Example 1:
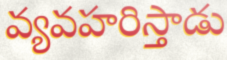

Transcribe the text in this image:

వ్యవహరిస్తాడు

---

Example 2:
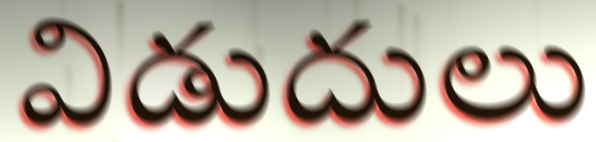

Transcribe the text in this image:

విడుదులు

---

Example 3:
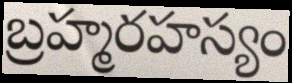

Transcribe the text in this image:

బ్రహ్మరహస్యం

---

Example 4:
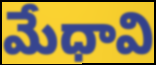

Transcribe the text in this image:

మేధావి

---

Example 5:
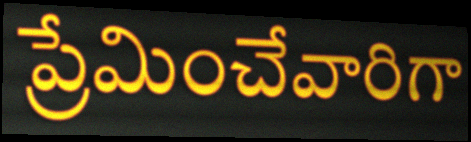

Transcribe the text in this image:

ప్రేమించేవారిగా